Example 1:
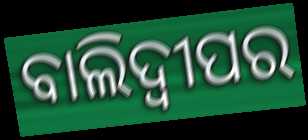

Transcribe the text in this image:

ବାଲିଦ୍ୱୀପର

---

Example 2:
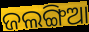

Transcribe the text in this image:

ଜଲଙ୍ଗିଆ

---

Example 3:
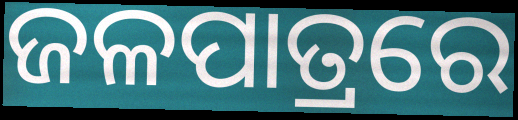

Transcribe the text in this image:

ଜଳପାତ୍ରରେ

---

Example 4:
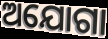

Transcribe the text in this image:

ଅଯୋଗା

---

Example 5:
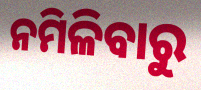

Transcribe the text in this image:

ନମିଳିବାରୁ